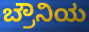
ಬ್ರೌನಿಯ